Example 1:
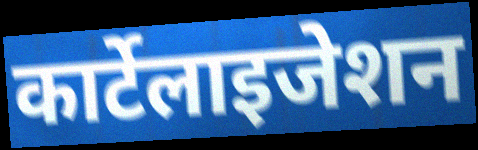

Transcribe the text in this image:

कार्टेलाइजेशन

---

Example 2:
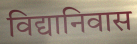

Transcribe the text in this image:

विद्यानिवास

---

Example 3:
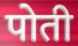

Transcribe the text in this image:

पोती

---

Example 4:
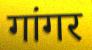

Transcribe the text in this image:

गांगर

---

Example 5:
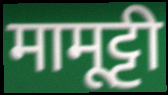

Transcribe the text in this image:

मामूट्टी